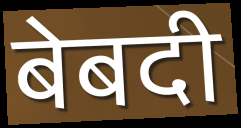
बेबदी